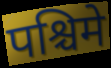
पश्चिमे